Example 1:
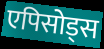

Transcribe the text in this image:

एपिसोड्स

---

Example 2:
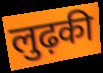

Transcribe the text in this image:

लुढ़की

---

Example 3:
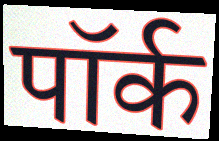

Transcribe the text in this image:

पॉर्क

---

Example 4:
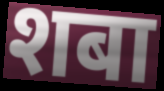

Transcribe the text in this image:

शबा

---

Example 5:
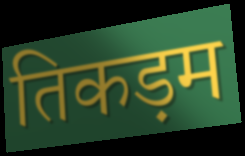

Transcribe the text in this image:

तिकड़म